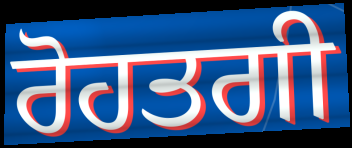
ਰੋਹਤਗੀ